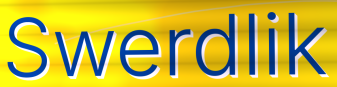
Swerdlik